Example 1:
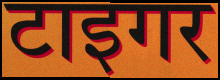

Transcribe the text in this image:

टाइगर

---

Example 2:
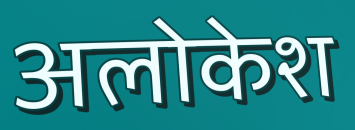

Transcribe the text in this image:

अलोकेश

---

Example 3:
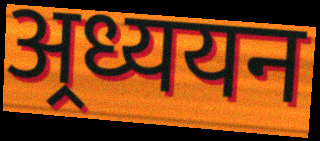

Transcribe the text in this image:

अ्रध्ययन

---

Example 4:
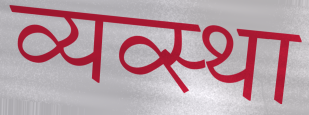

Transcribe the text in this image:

व्यव्स्था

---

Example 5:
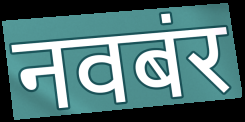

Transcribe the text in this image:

नवबंर